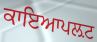
ਕਾਇਆਪਲ਼ਟ